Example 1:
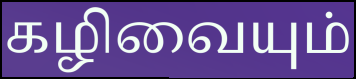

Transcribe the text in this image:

கழிவையும்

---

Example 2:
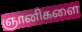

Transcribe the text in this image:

ஞானிகளை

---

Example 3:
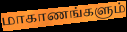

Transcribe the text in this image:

மாகாணங்களும்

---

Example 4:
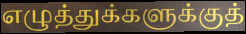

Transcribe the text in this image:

எழுத்துக்களுக்குத்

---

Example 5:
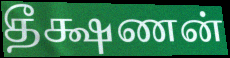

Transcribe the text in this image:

தீக்ஷணன்